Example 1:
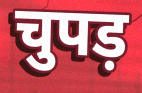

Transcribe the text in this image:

चुपड़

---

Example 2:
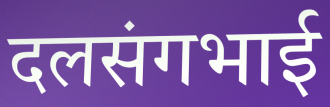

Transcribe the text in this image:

दलसंगभाई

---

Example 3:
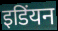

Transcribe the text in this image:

इडिंयन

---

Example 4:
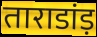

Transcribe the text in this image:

ताराडांड़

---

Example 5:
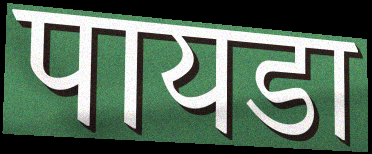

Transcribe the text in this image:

पायडा